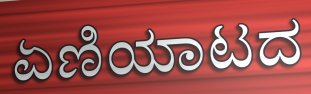
ಏಣಿಯಾಟದ